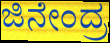
ಜಿನೇಂದ್ರ